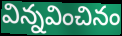
విన్నవించినం